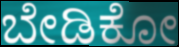
ಬೇಡಿಕೋ